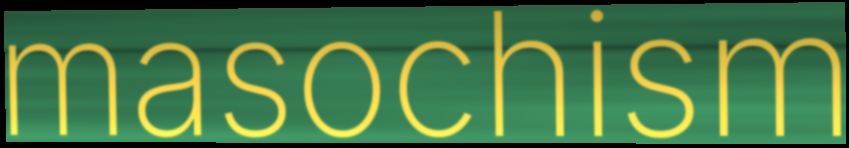
masochism